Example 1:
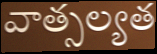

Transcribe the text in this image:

వాత్సల్యత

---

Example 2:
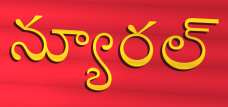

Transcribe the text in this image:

న్యూరల్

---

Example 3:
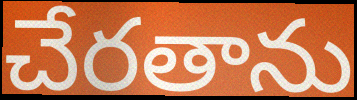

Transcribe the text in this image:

చేరతాను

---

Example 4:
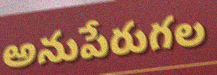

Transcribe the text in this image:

అనుపేరుగల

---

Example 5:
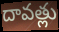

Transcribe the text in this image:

దావత్లు